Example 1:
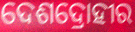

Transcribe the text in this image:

ଦେଶଦ୍ରୋହୀର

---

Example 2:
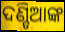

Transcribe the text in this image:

ଦଣ୍ଡିଆଙ୍କ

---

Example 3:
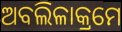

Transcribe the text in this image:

ଅବଲିଳାକ୍ରମେ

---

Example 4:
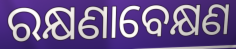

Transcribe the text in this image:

ରକ୍ଷଣାବେକ୍ଷଣ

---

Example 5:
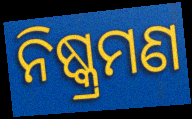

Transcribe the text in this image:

ନିଷ୍କ୍ରମଣ